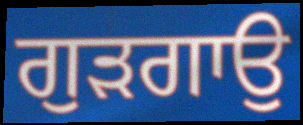
ਗੁੜਗਾਉ